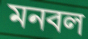
মনবল